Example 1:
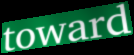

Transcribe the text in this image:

toward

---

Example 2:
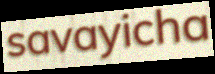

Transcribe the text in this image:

savayicha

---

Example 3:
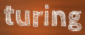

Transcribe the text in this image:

turing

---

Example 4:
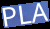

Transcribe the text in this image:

PLA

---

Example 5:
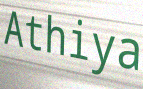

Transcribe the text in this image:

Athiya